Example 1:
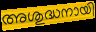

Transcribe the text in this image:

അശുദ്ധനായി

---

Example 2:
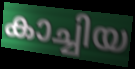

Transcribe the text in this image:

കാച്ചിയ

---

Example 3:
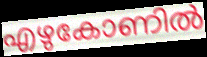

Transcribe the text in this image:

എഴുകോണിൽ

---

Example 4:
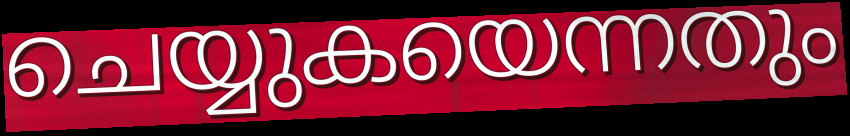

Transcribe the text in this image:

ചെയ്യുകയെന്നതും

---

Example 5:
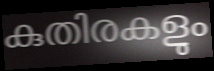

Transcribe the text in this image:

കുതിരകളും